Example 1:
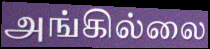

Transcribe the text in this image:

அங்கில்லை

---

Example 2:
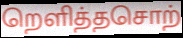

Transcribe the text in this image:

றெளித்தசொற்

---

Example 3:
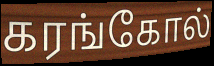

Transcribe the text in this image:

கரங்கோல்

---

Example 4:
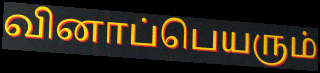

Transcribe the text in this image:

வினாப்பெயரும்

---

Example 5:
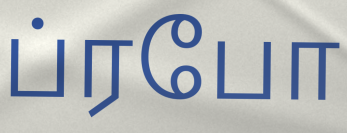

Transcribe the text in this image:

ப்ரபோ